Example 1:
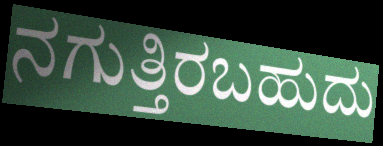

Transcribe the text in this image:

ನಗುತ್ತಿರಬಹುದು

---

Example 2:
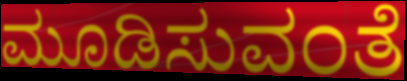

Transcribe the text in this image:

ಮೂಡಿಸುವಂತೆ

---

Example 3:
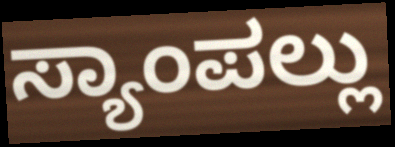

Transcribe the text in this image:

ಸ್ಯಾಂಪಲ್ಲು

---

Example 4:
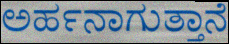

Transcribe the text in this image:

ಅರ್ಹನಾಗುತ್ತಾನೆ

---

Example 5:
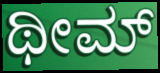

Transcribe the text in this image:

ಥೀಮ್